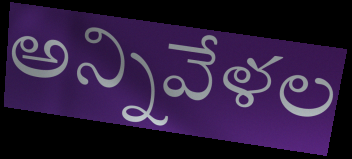
అన్నివేళల